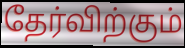
தேர்விற்கும்